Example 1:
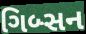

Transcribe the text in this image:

ગિબ્સન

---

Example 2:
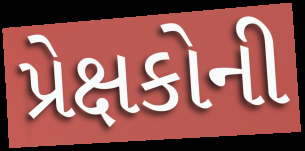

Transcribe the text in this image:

પ્રેક્ષકોની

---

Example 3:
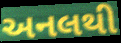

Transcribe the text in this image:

અનલથી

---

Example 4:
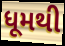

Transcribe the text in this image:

ધૂમથી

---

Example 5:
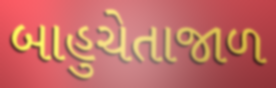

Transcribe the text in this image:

બાહુચેતાજાળ